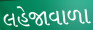
લહેજાવાળા